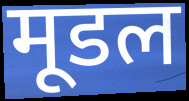
मूडल